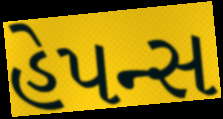
હેપન્સ